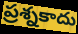
ప్రశ్నకాదు